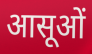
आसूओं